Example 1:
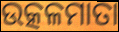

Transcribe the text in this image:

ଉତ୍କଳମାତା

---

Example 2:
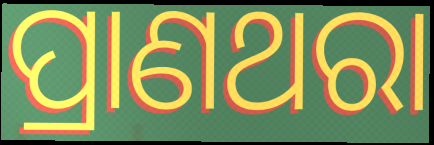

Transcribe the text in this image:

ପ୍ରାଣଥରା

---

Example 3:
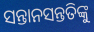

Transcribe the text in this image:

ସନ୍ତାନସନ୍ତତିଙ୍କୁ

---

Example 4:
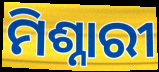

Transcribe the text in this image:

ମିଶ୍ନାରୀ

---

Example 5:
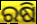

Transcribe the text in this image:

ରଷି